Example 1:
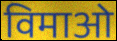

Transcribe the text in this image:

विमाओ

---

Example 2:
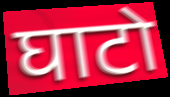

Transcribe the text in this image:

घाटो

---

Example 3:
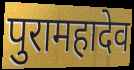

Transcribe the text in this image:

पुरामहादेव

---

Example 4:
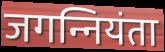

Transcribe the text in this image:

जगन्नियंता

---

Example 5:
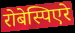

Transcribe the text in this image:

रोबेस्पिएरे